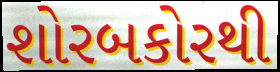
શોરબકોરથી